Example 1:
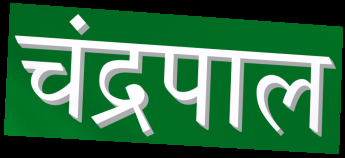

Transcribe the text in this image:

चंद्रपाल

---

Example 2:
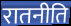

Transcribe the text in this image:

रातनीति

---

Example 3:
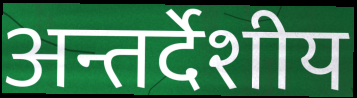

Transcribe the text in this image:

अन्तर्देशीय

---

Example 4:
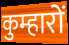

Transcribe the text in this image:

कुम्हारों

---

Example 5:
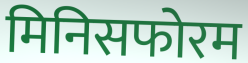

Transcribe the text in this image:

मिनिसफोरम